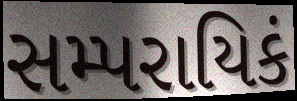
સમ્પરાયિકં